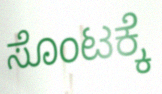
ಸೊಂಟಕ್ಕೆ